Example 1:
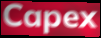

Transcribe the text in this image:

Capex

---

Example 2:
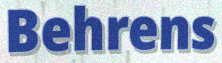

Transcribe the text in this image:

Behrens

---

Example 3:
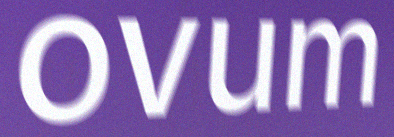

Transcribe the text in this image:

ovum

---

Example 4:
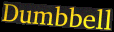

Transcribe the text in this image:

Dumbbell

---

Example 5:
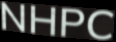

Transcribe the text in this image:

NHPC